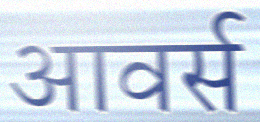
आवर्स